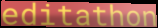
editathon